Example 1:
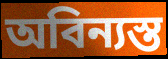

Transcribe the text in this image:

অবিন্যস্ত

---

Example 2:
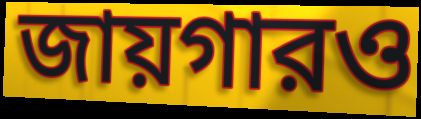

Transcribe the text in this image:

জায়গারও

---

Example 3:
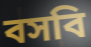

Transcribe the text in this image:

বসবি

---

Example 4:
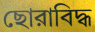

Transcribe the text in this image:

ছোরাবিদ্ধ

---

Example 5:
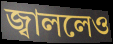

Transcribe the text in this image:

জ্বাললেও